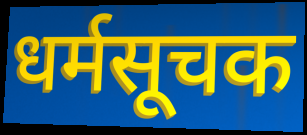
धर्मसूचक